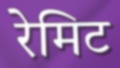
रेमिट